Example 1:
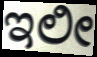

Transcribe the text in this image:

ಇಲೀ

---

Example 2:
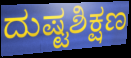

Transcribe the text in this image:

ದುಷ್ಟಶಿಕ್ಷಣ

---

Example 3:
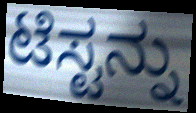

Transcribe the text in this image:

ಟೆಸ್ಟನ್ನು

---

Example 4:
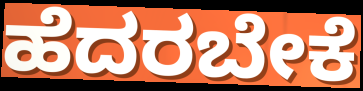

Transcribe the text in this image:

ಹೆದರಬೇಕೆ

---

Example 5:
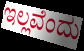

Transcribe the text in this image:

ಇಲ್ಲವೆಂದು